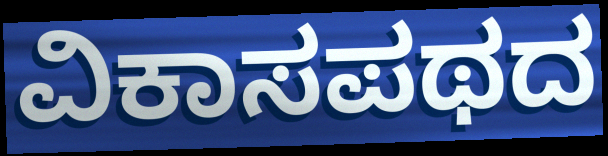
ವಿಕಾಸಪಥದ